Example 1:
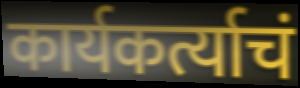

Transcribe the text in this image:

कार्यकर्त्याचं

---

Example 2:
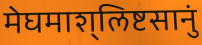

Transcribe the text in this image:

मेघमाश्लिष्टसानुं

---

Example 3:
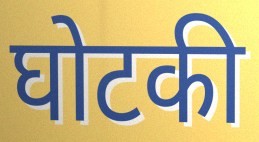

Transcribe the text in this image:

घोटकी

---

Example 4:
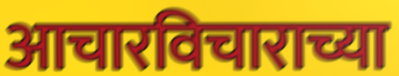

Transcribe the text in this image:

आचारविचाराच्या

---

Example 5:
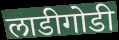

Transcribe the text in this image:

लाडीगोडी